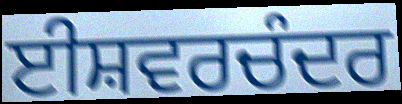
ਈਸ਼ਵਰਚੰਦਰ